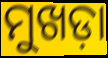
ମୁଖଡ଼ା